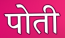
पोती